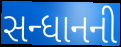
સન્ધાનની